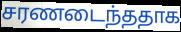
சரணடைந்ததாக